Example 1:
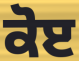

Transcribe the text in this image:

ਕੋੲ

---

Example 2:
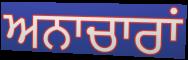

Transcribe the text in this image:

ਅਨਾਚਾਰਾਂ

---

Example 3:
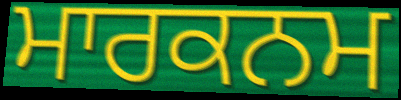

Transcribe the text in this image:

ਮਾਰਕਨਮ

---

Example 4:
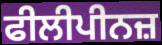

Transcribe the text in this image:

ਫੀਲੀਪੀਨਜ਼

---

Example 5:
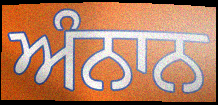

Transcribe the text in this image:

ਅੰਨਾਨ